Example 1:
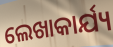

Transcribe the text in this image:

ଲେଖାକାର୍ଯ୍ୟ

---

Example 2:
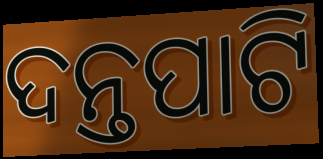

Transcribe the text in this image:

ଦନ୍ତପାଟି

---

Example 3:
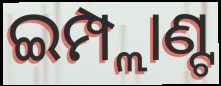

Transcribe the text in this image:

ଇମ୍ପ୍ଲାଣ୍ଟ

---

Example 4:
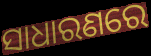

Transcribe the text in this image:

ସାଧାରଣରେ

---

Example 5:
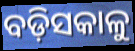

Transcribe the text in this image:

ବଡ଼ିସକାଳୁ